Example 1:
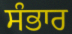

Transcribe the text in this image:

ਸੰਭਾਰ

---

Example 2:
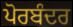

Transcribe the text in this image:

ਪੋਰਬੰਦਰ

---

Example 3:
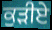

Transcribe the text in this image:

ਕੁੜੀਏ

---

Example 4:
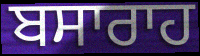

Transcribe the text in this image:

ਬਸਾਰਾਹ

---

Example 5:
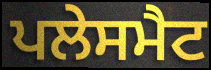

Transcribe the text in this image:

ਪਲੇਸਮੈਟ